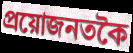
প্ৰয়োজনতকৈ